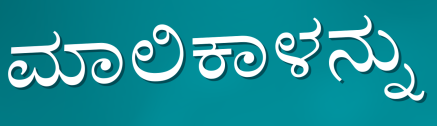
ಮಾಲಿಕಾಳನ್ನು